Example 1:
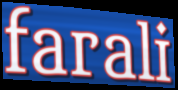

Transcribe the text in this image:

farali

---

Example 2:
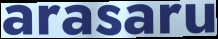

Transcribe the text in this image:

arasaru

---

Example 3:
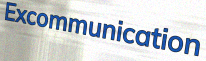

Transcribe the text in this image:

Excommunication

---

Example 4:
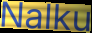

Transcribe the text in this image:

Nalku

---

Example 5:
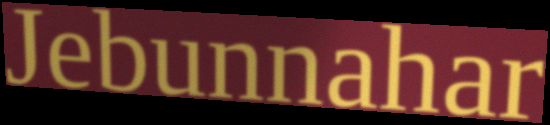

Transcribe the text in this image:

Jebunnahar